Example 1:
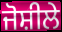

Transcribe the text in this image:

ਜੋਸ਼ੀਲੇ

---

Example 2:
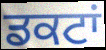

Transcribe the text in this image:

ਡਕਟਾਂ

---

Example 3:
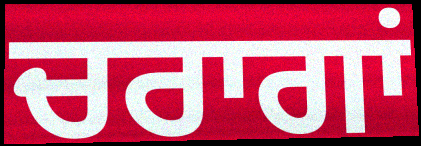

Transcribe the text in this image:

ਚਰਾਗਾਂ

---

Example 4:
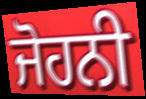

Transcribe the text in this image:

ਜੋਹਨੀ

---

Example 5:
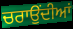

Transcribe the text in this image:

ਚਰਾਉਂਦੀਆਂ